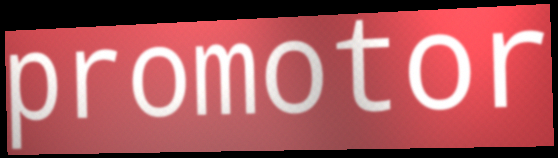
promotor